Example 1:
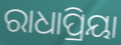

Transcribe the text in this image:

ରାଧାପ୍ରିୟା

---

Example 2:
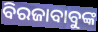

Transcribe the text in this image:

ବିରଜାବାବୁଙ୍କ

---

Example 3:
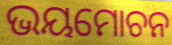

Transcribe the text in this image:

ଭୟମୋଚନ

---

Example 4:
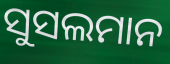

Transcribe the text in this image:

ସୁସଲମାନ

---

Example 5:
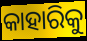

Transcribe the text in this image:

କାହାରିକୁ